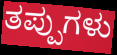
ತಪ್ಪುಗಳು